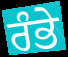
ਰੰਭੇ